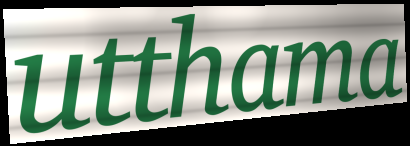
utthama